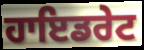
ਹਾਇਡਰੇਟ